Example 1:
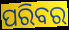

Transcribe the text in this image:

ପରିବର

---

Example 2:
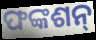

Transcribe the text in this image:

ଫଙ୍କଶନ୍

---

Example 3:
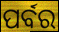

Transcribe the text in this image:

ପର୍ବର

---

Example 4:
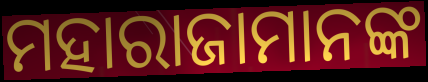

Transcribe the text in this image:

ମହାରାଜାମାନଙ୍କ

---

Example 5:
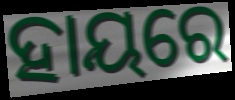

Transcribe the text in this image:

ହାୟରେ